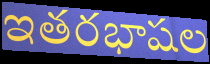
ఇతరభాషల